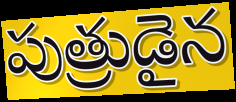
పుత్రుడైన